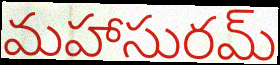
మహాసురమ్